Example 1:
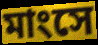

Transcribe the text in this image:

মাংসে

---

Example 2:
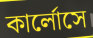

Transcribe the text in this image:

কার্লোসে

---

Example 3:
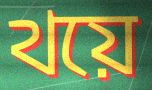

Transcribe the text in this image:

থয়ে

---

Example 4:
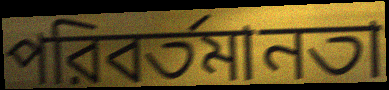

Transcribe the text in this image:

পরিবর্তমানতা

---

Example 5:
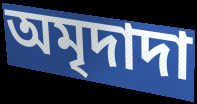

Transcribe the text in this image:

অমৃদাদা